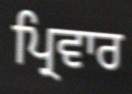
ਪ੍ਰਿਵਾਰ